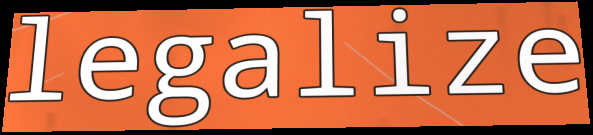
legalize